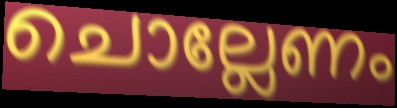
ചൊല്ലേണം